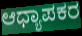
ಆಧ್ಯಾಪಕರ